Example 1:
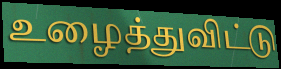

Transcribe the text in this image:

உழைத்துவிட்டு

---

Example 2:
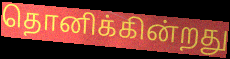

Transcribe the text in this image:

தொனிக்கின்றது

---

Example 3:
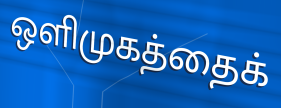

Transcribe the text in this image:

ஒளிமுகத்தைக்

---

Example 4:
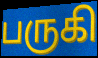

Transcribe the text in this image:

பருகி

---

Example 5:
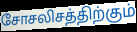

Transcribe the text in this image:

சோசலிசத்திற்கும்